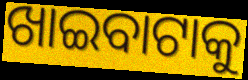
ଖାଇବାଟାକୁ